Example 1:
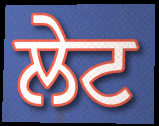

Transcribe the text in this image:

ਲੇਟ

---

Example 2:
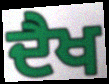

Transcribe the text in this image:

ਦੈਖ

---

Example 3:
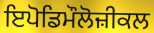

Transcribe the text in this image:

ਇਪੋਡਿਮੌਲੋਜ਼ੀਕਲ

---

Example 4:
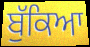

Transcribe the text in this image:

ਬੁੱਕਿਆ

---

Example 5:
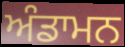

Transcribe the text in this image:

ਅੰਡਾਮਨ